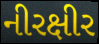
નીરક્ષીર